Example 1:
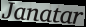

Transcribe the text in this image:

Janatar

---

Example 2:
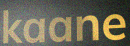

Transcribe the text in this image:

kaane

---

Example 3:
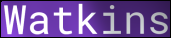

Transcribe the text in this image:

Watkins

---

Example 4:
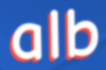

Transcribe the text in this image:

alb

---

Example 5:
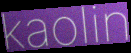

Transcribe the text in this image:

kaolin